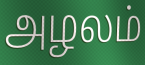
அழலம்